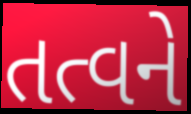
તત્વને